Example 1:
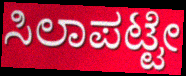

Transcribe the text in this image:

ಸಿಲಾಪಟ್ಟೇ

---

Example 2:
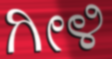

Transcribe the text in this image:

ಗೀಳಿ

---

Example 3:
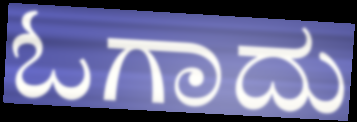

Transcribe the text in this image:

ಓಗಾದು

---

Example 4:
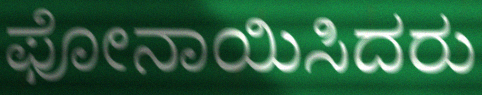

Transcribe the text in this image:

ಫೋನಾಯಿಸಿದರು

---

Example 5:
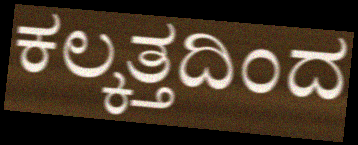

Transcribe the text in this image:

ಕಲ್ಕತ್ತದಿಂದ